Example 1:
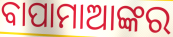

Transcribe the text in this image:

ବାପାମାଆଙ୍କର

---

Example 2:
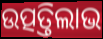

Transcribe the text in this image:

ଉତ୍ପତ୍ତିଲାଭ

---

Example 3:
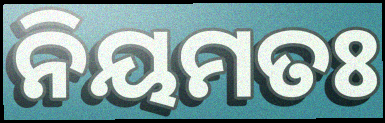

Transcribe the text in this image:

ନିୟମତଃ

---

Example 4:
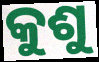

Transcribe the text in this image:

କୁଶୁ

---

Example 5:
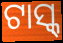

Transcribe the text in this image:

ଟାସ୍କ୍